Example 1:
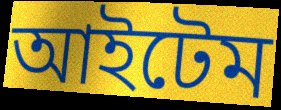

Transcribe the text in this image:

আইটেম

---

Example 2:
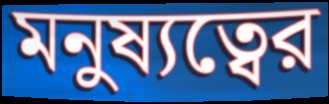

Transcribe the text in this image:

মনুষ্যত্বের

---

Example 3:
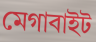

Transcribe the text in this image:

মেগাবাইট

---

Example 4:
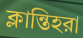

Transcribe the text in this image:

ক্লান্তিহরা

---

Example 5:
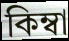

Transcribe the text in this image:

কিম্বা